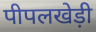
पीपलखेड़ी